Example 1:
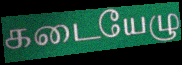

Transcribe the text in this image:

கடையேழு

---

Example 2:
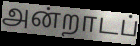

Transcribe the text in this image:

அன்றாடப்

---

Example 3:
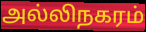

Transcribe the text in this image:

அல்லிநகரம்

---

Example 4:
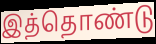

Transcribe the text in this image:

இத்தொண்டு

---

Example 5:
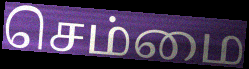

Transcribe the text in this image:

செம்மை